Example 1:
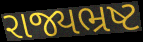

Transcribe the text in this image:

રાજ્યભ્રષ્ટ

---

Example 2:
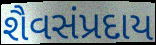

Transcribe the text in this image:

શૈવસંપ્રદાય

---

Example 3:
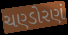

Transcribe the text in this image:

ચણ્ડોરણં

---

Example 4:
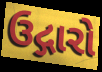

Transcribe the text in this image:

ઉદ્ગારો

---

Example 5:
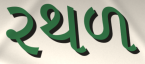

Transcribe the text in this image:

રથળ